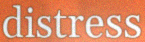
distress